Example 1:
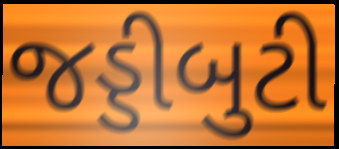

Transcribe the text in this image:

જડ્ડીબુટી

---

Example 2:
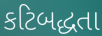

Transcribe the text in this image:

કટિબદ્ધતા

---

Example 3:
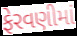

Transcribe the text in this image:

ફેરવણીમાં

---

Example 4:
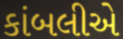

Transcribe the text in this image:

કાંબલીએ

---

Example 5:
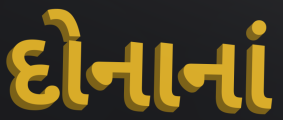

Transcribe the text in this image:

દોનાનાં